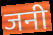
जनी